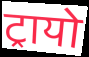
ट्रायो